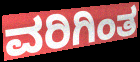
ವರಿಗಿಂತ